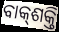
ବାକ୍‌ଶକ୍ତି